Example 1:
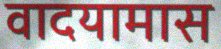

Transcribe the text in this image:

वादयामास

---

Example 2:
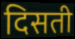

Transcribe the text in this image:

दिसती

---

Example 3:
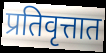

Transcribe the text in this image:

प्रतिवृत्तात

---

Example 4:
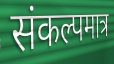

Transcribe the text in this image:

संकल्पमात्र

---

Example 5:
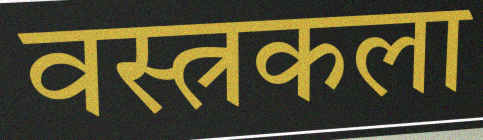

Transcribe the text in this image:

वस्त्रकला